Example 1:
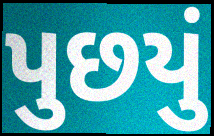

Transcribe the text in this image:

પુછયું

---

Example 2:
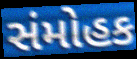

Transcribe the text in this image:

સંમોહક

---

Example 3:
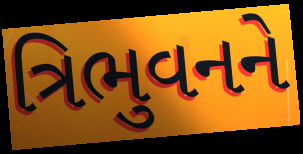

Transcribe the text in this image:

ત્રિભુવનને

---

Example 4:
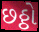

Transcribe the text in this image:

છઠ્ઠો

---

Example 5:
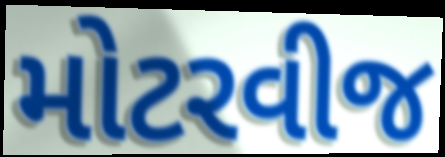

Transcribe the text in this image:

મોટરવીજ